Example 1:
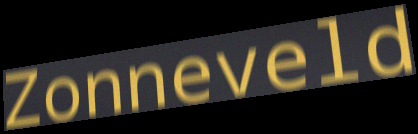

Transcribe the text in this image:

Zonneveld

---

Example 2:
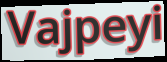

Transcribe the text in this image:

Vajpeyi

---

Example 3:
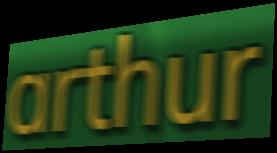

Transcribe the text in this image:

arthur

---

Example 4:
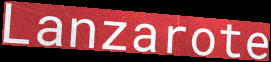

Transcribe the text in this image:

Lanzarote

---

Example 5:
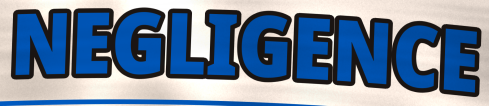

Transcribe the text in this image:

NEGLIGENCE